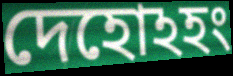
দেহোঽহং